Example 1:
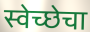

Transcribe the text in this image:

स्वेच्छेचा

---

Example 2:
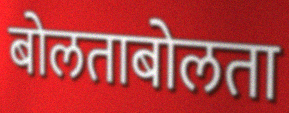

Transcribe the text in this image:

बोलताबोलता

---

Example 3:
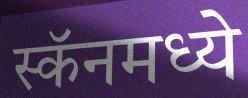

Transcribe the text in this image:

स्कॅनमध्ये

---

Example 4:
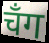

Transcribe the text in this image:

चँग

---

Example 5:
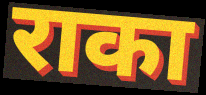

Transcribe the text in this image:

राका